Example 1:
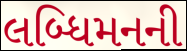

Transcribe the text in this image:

લબ્ધિમનની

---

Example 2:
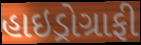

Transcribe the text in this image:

હાઇડ્રોગ્રાફી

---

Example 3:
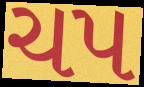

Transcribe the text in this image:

ચપ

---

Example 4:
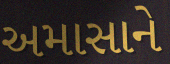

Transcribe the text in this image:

અમાસાને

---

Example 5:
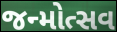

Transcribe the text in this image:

જન્મોત્સવ